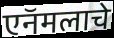
एनॅमलाचे